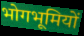
भोगभूमियों